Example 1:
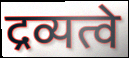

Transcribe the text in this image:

द्रव्यत्वे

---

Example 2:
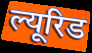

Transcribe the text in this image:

ल्यूरिड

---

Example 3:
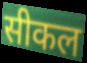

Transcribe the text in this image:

सीकल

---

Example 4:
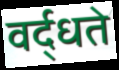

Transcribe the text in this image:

वर्द्धते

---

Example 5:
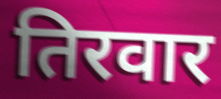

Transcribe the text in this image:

तिरवार